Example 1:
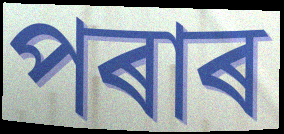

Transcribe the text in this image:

পৰাৰ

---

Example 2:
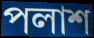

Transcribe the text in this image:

পলাশ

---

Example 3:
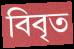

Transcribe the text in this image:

বিবৃত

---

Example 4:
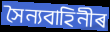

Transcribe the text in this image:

সৈন্যবাহিনীৰ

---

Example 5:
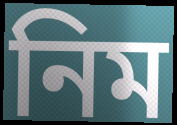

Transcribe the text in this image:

নিম